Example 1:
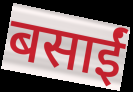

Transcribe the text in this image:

बसाईं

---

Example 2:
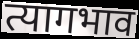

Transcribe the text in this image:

त्यागभाव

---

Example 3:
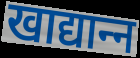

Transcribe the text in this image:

खाद्यान्‍न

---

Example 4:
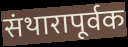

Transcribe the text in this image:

संथारापूर्वक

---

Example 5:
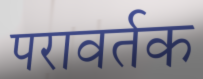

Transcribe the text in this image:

परावर्तक